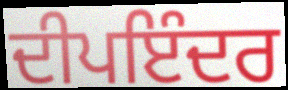
ਦੀਪਇੰਦਰ